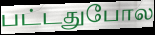
பட்டதுபோல